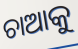
ଚାଆକୁ